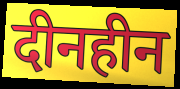
दीनहीन